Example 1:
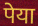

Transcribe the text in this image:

पेया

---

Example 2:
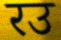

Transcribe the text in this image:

रउ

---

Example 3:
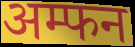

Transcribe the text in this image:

अम्फन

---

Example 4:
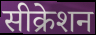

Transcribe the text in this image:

सीक्रेशन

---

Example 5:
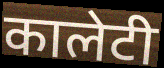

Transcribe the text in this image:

कालेटी